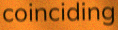
coinciding